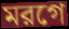
মরগে